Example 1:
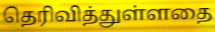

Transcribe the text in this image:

தெரிவித்துள்ளதை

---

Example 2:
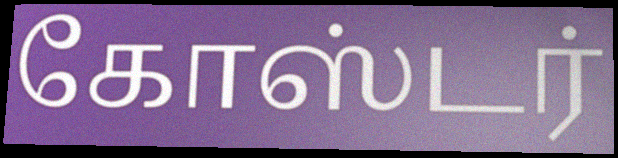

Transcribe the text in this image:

கோஸ்டர்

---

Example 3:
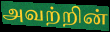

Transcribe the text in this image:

அவற்றின்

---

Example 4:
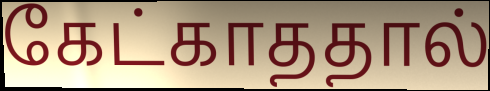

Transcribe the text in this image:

கேட்காததால்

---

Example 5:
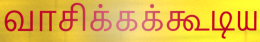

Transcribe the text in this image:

வாசிக்கக்கூடிய